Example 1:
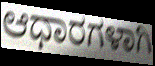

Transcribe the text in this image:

ಆಧಾರಗಳಾಗಿ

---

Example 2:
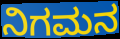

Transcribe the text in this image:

ನಿಗಮನ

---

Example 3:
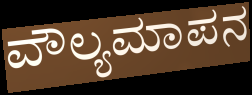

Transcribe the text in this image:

ವೌಲ್ಯಮಾಪನ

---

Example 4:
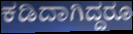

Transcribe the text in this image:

ಕಡಿದಾಗಿದ್ದರೂ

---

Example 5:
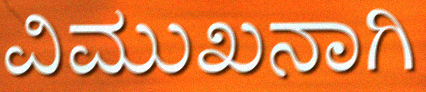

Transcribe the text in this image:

ವಿಮುಖನಾಗಿ